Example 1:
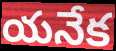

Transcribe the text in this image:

యనేక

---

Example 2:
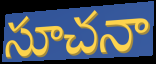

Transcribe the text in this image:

సూచనా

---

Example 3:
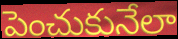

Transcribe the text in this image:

పెంచుకునేలా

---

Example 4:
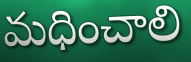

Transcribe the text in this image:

మధించాలి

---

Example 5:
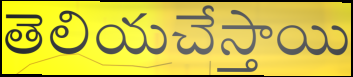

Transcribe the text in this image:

తెలియచేస్తాయి